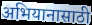
अभियानासाठी